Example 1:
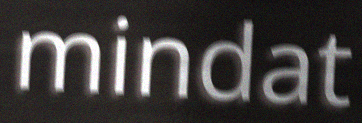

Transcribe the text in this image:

mindat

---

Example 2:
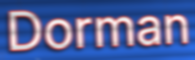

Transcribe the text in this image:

Dorman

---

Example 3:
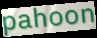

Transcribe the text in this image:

pahoon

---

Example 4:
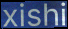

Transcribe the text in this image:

xishi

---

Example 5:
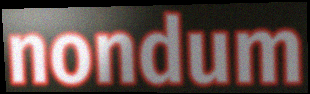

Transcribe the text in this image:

nondum